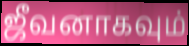
ஜீவனாகவும்